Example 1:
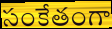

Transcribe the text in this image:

సంకేతంగా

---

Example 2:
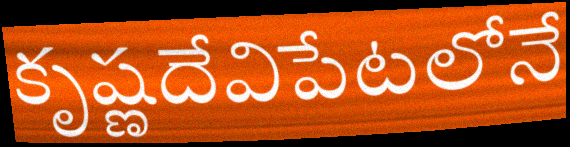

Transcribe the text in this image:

కృష్ణదేవిపేటలోనే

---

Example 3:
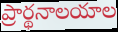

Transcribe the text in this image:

ప్రార్థనాలయాల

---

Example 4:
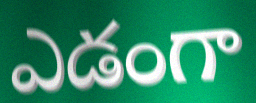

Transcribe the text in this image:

ఎడంగా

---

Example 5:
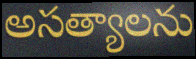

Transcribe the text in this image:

అసత్యాలను